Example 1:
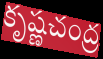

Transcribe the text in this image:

కృష్ణచంద్ర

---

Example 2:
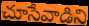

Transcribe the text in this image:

చూసేవాడిని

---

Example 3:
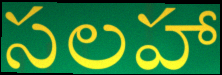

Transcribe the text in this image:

సలహా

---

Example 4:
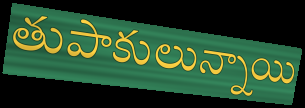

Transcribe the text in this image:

తుపాకులున్నాయి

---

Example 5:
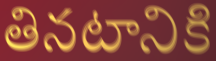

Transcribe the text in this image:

తినటానికి